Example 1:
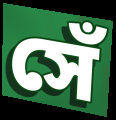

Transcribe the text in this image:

সেঁ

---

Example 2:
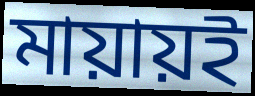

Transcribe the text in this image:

মায়ায়ই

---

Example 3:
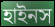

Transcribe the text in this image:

হাইনস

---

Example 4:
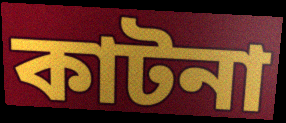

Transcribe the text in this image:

কাটনা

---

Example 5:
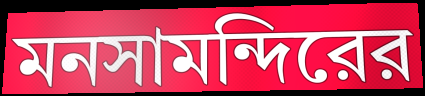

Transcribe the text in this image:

মনসামন্দিরের